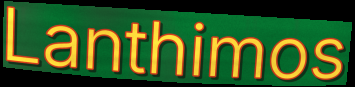
Lanthimos